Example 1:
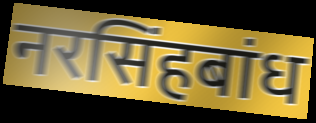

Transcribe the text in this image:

नरसिंहबांध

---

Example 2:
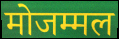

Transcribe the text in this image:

मोजम्मल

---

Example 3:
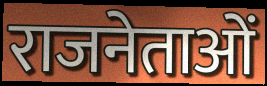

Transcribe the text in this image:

राजनेताओं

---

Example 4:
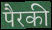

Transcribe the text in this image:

पैरकी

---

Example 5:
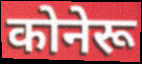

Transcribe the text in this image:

कोनेरू